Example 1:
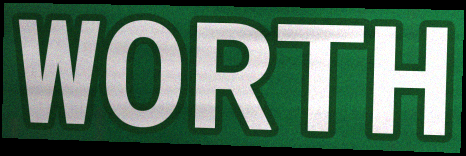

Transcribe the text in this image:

WORTH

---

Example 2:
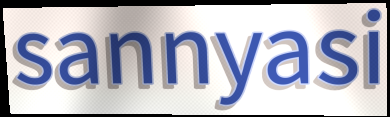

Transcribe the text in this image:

sannyasi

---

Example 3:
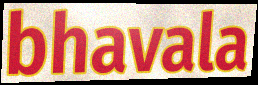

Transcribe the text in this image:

bhavala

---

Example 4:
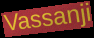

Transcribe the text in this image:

Vassanji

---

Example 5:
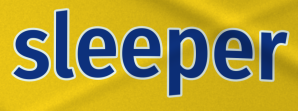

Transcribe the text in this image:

sleeper